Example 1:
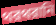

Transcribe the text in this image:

থরথরানি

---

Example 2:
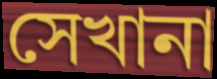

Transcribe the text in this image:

সেখানা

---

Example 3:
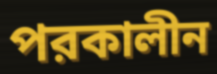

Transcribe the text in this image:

পরকালীন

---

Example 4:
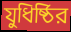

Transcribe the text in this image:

যুধিষ্ঠির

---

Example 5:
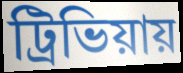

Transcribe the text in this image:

ট্রিভিয়ায়